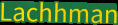
Lachhman